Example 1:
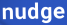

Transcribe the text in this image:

nudge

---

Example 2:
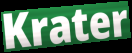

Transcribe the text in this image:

Krater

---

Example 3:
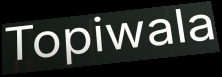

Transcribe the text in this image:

Topiwala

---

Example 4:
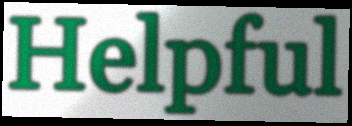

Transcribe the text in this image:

Helpful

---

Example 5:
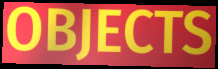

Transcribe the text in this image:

OBJECTS